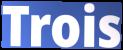
Trois